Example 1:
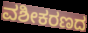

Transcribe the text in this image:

ವಶೀಕರಣದ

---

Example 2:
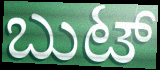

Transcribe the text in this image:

ಬುಟ್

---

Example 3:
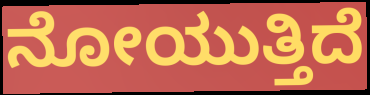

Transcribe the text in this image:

ನೋಯುತ್ತಿದೆ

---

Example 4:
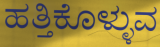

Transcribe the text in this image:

ಹತ್ತಿಕೊಳ್ಳುವ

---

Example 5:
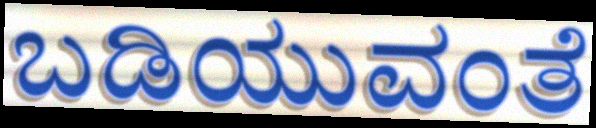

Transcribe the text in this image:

ಬಡಿಯುವಂತೆ